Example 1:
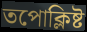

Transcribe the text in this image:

তপোক্লিষ্ট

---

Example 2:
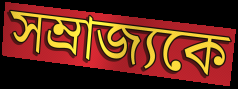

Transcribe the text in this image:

সম্রাজ্যকে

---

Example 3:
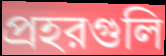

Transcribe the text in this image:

প্রহরগুলি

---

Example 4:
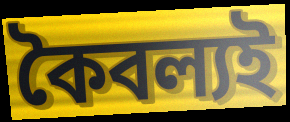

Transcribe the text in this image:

কৈবল্যই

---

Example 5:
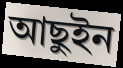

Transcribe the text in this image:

আছুইন